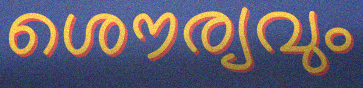
ശൌര്യവും